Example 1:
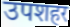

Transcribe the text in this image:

उपशहर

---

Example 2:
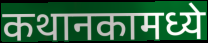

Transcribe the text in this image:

कथानकामध्ये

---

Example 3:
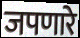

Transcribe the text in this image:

जपणारे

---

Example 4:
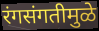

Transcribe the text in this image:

रंगसंगतीमुळे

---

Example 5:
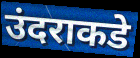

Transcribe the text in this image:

उंदराकडे